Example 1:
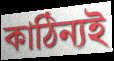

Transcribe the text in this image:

কাঠিন্যই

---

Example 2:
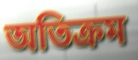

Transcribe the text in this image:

অতিক্ৰম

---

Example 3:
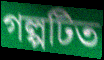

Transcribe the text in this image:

গল্পটিত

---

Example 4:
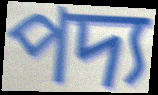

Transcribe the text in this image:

পদ্য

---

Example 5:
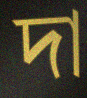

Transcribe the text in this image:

দা